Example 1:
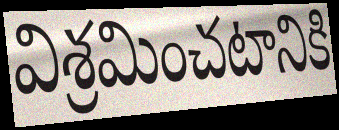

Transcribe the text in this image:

విశ్రమించటానికి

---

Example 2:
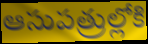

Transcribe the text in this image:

ఆసుపత్రుల్లోకి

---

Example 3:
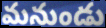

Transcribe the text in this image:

మనుండు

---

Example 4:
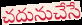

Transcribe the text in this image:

చదునుచేసే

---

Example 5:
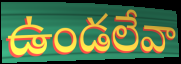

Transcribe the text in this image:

ఉండలేవా